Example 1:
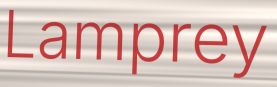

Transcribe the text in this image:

Lamprey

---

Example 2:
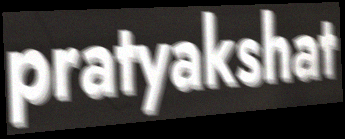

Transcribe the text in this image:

pratyakshat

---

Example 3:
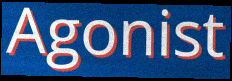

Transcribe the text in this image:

Agonist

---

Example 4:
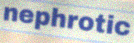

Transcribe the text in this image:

nephrotic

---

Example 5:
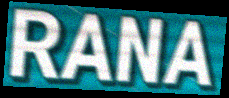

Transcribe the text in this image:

RANA